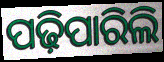
ପଢ଼ିପାରିଲି